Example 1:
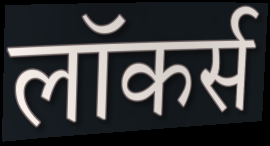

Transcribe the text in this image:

लॉकर्स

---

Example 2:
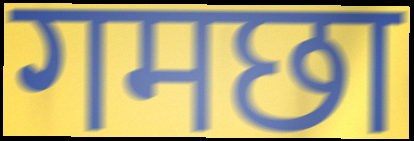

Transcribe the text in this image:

गमछा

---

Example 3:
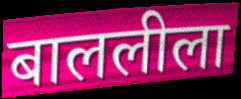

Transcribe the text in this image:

बाललीला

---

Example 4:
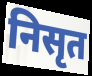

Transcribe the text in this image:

निसृत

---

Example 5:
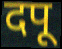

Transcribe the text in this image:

दपू